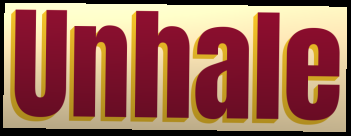
Unhale